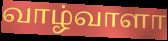
வாழ்வாளா